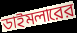
ডাইমলারের